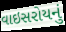
વાઇસરોયનું